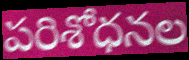
పరిశోధనల